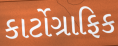
કાર્ટોગ્રાફિક